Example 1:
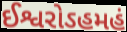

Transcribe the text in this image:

ઈશ્વરોઽહમહં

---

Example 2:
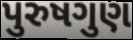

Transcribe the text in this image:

પુરુષગુણ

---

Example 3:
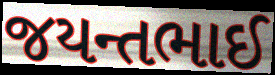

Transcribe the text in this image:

જયન્તભાઈ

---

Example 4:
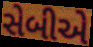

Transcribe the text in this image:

સેબીએ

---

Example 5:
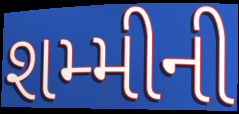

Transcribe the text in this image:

શમ્મીની